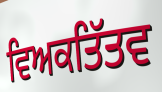
ਵਿਅਕਤਿੱਤਵ